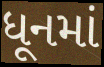
ધૂનમાં